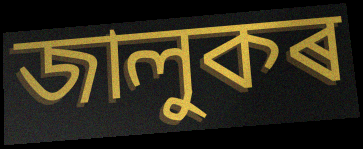
জালুকৰ